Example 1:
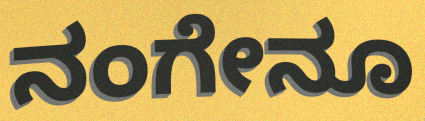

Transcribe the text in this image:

ನಂಗೇನೂ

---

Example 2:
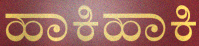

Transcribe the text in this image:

ಹಾಕಿಹಾಕಿ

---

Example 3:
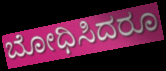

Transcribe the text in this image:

ಬೋಧಿಸಿದರೂ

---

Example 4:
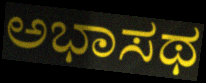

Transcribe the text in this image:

ಅಭಾಸಥ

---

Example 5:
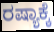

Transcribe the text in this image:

ರಷ್ಯಾಕ್ಕೆ